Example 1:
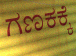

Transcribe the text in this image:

ಗಣಕಕ್ಕೆ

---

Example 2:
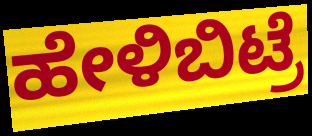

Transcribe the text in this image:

ಹೇಳಿಬಿಟ್ರೆ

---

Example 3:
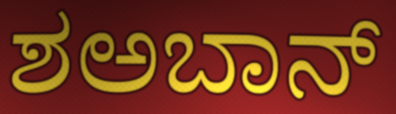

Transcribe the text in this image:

ಶಅಬಾನ್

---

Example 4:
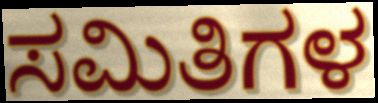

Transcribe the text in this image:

ಸಮಿತಿಗಳ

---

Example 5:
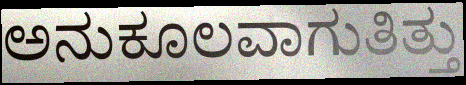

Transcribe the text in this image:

ಅನುಕೂಲವಾಗುತಿತ್ತು